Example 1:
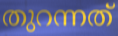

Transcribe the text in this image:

തുറന്നത്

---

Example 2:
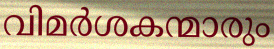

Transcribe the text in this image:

വിമർശകന്മാരും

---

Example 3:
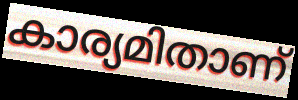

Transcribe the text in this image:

കാര്യമിതാണ്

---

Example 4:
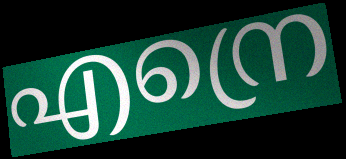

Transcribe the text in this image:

എന്രെ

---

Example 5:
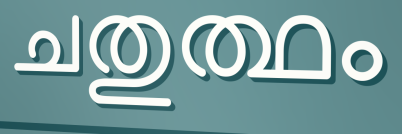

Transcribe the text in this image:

ചതുത്ഥം